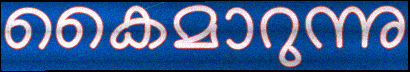
കൈമാറുന്നു